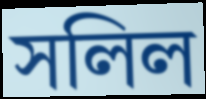
সলিল